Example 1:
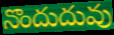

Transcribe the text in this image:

నొందుదువు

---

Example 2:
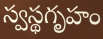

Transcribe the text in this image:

స్వస్థగృహం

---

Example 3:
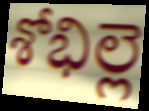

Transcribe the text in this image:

శోభిల్లె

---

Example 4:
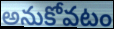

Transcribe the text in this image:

అనుకోవటం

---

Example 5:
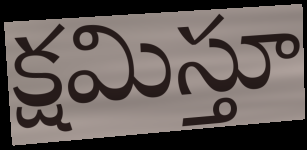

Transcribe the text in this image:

క్షమిస్తూ